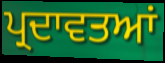
ਪ੍ਰਦਾਵਤਆਂ